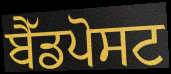
ਬੈੱਡਪੋਸਟ